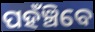
ପହଁଞ୍ଚିବେ